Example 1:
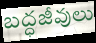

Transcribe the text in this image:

బద్ధజీవులు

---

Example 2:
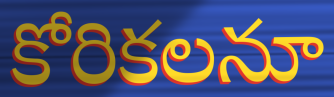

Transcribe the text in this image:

కోరికలనూ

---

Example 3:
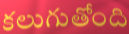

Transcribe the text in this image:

కలుగుతోంది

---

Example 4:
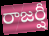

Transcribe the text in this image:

రాజర్షీ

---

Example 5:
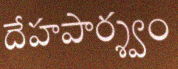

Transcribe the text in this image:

దేహపార్శ్వం